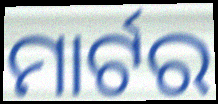
ମାର୍ଟର